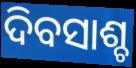
ଦିବସାଶ୍ଚ